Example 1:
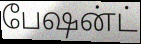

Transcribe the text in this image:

பேஷன்ட்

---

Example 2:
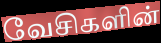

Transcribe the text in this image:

வேசிகளின்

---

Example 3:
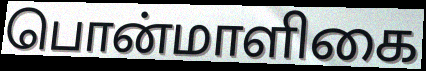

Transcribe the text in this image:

பொன்மாளிகை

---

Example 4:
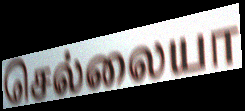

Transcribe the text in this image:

செல்லையா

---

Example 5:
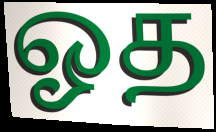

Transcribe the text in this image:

ஓத